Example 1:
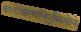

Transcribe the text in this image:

वातावरणनिर्मितीने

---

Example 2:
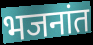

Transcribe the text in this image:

भजनांत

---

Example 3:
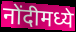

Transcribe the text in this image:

नोंदीमध्ये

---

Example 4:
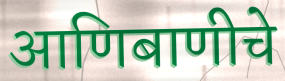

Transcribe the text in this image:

आणिबाणीचे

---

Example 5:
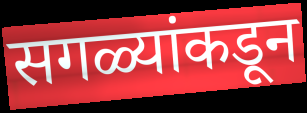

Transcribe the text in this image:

सगळ्यांकडून